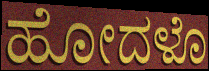
ಹೋದಳೊ